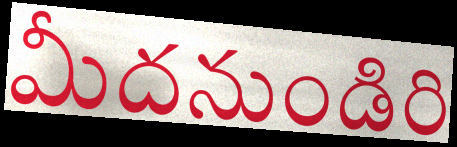
మీదనుండిరి